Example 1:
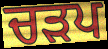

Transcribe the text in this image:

ਚੜਪ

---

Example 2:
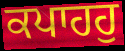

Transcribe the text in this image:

ਕਪਾਹਹੁ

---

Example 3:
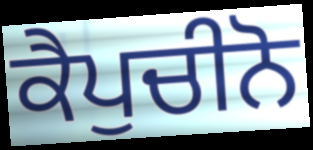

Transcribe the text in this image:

ਕੈਪੁਚੀਨੋ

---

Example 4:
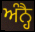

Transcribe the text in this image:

ਅੰਨ੍ਹੈ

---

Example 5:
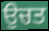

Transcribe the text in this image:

ਉਚਤ